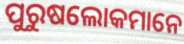
ପୁରୁଷଲୋକମାନେ